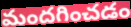
మందగించడం